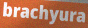
brachyura